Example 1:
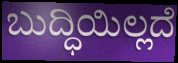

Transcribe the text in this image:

ಬುದ್ಧಿಯಿಲ್ಲದೆ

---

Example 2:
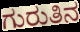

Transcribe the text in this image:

ಗುರುತಿನ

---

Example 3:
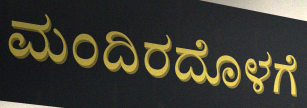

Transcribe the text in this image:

ಮಂದಿರದೊಳಗೆ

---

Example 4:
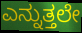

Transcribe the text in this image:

ಎನ್ನುತ್ತಲೇ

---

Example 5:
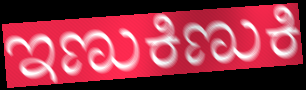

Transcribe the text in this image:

ಇಣುಕಿಣುಕಿ